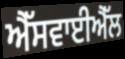
ਐੱਸਵਾਈਐੱਲ